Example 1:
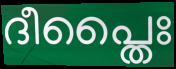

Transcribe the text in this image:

ദീപ്തൈഃ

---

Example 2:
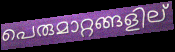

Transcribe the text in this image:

പെരുമാറ്റങ്ങളില്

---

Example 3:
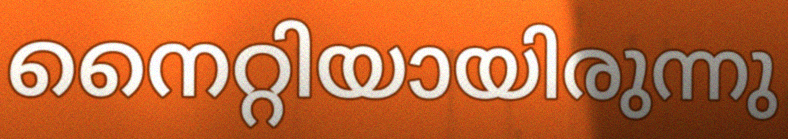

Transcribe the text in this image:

നൈറ്റിയായിരുന്നു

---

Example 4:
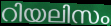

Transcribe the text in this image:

റിയലിസം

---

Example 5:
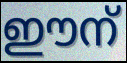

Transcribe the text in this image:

ഈന്